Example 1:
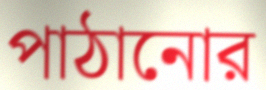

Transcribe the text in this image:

পাঠানোর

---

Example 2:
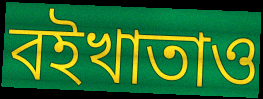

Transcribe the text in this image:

বইখাতাও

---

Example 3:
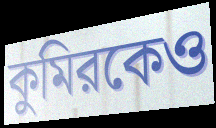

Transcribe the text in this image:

কুমিরকেও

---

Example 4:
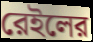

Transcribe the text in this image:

রেইলের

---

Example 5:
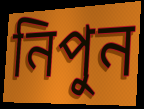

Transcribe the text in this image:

নিপুন